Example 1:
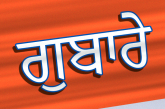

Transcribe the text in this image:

ਗੁਬਾਰੇ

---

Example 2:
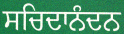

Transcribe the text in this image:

ਸਚਿਦਾਨੰਦਨ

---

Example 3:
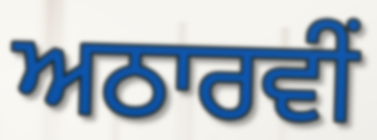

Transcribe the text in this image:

ਅਠਾਰਵੀਂ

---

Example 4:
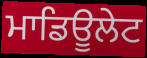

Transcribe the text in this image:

ਮਾਡਿਊਲੇਟ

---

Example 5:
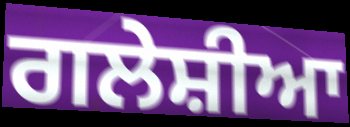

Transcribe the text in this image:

ਗਲੇਸ਼ੀਆ